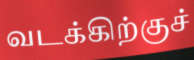
வடக்கிற்குச்